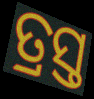
ତ୍ରସ୍ତ